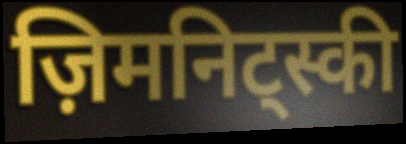
ज़िमनिट्स्की